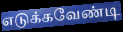
எடுக்கவேண்டி